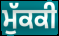
ਮੁੱਕਕੀ